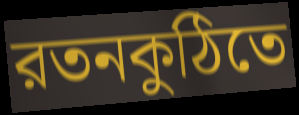
রতনকুঠিতে